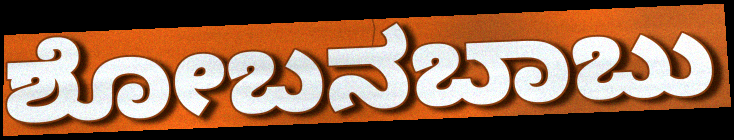
ಶೋಬನಬಾಬು